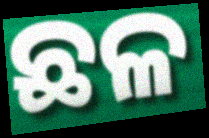
ଛଳ